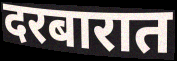
दरबारात